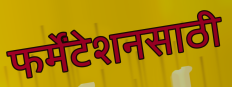
फर्मेंटेशनसाठी